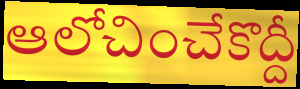
ఆలోచించేకొద్దీ